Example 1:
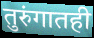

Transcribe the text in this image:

तुरुंगातही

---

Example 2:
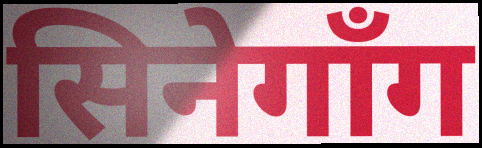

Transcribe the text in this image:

सिनेगाँग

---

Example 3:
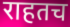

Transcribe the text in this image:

राहतच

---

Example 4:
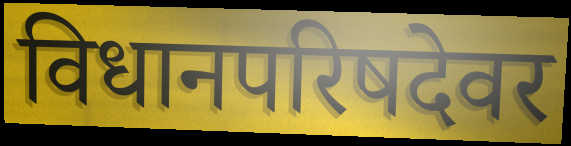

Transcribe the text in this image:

विधानपरिषदेवर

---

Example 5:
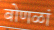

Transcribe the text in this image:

बोणळां